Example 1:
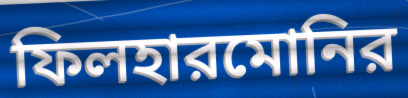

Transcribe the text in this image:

ফিলহারমোনির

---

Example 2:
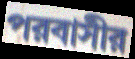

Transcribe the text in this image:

পরবাসীর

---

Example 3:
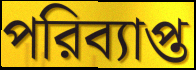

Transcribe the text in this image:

পরিব্যাপ্ত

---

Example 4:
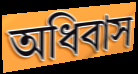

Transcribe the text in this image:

অধিবাস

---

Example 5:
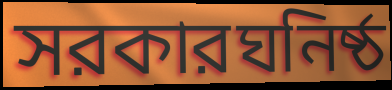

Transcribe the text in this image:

সরকারঘনিষ্ঠ